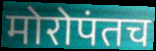
मोरोपंतच